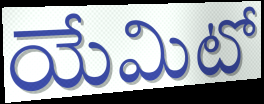
యేమిటో